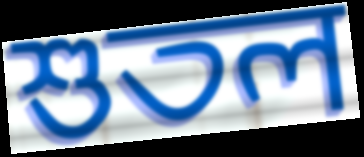
শুতল